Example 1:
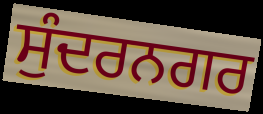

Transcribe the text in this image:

ਸੁੰਦਰਨਗਰ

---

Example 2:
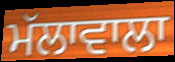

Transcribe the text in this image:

ਮੱਲਾਵਾਲਾ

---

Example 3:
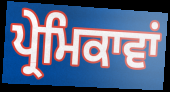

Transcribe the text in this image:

ਪ੍ਰੇਮਿਕਾਵਾਂ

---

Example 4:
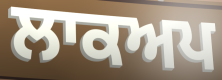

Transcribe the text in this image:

ਲਾਕਅਪ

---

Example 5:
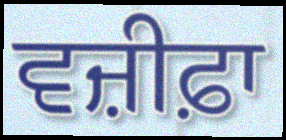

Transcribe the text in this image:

ਵਜ਼ੀਫ਼ਾ